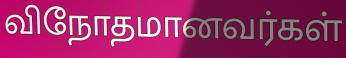
விநோதமானவர்கள்